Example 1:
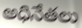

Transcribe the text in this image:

అధినేతలు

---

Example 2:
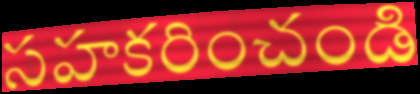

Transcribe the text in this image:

సహకరించండి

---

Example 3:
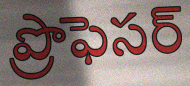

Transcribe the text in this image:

ప్రొఫెసర్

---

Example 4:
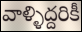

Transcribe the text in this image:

వాళ్ళిద్దరికీ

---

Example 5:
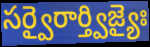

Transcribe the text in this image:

సర్వైరార్త్విజ్యైః